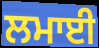
ਲਮਾਈ